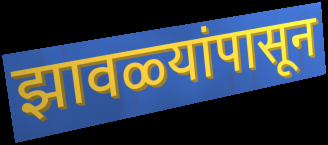
झावळ्यांपासून